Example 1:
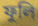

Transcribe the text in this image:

ফুলি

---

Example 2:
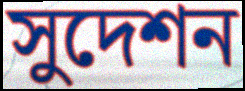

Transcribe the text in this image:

সুদেশন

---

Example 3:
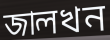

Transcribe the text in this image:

জালখন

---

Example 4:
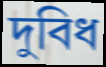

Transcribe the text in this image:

দুবিধ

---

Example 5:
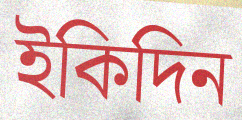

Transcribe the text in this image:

ইকিদিন